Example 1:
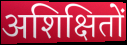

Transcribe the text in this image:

अशिक्षितों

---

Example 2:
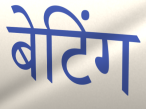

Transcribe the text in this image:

बेटिंग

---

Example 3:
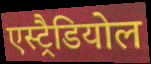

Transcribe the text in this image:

एस्ट्रैडियोल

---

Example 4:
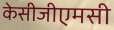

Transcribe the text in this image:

केसीजीएमसी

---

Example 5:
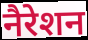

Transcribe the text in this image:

नैरेशन